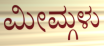
ಮೀಮ್ಗಳು